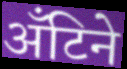
अँटिने